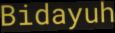
Bidayuh